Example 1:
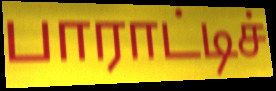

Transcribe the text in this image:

பாராட்டிச்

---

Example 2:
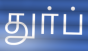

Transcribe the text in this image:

துர்ப்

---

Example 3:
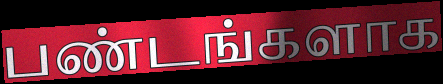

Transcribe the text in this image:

பண்டங்களாக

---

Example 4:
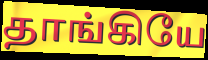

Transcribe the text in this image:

தாங்கியே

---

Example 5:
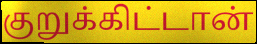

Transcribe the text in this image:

குறுக்கிட்டான்